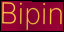
Bipin